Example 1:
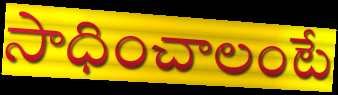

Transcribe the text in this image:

సాధించాలంటే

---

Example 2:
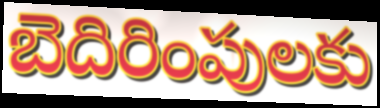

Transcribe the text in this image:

బెదిరింపులకు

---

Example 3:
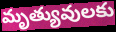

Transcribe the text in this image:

మృత్యువులకు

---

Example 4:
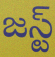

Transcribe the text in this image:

జస్ట్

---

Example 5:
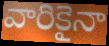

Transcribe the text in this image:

వారికైనా